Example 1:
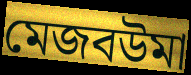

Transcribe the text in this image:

মেজবউমা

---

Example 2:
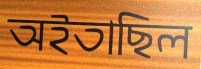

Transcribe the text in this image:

অইতাছিল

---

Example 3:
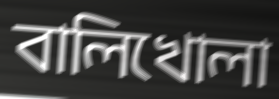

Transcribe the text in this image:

বালিখোলা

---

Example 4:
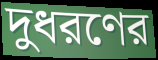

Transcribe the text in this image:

দুধরণের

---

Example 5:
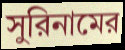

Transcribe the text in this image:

সুরিনামের